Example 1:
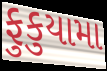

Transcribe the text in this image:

ફુકુયામા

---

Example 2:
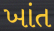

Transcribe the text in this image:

ખાંત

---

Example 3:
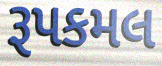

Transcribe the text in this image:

રૂપકમલ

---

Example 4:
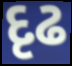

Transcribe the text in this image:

દૃઢ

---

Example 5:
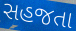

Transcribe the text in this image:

સહજતા